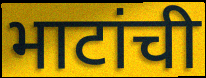
भाटांची